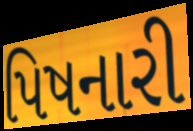
પિષનારી